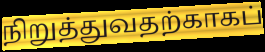
நிறுத்துவதற்காகப்